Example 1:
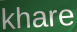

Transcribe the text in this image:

khare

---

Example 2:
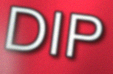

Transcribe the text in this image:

DIP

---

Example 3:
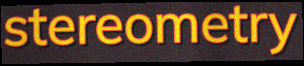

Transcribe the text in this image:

stereometry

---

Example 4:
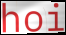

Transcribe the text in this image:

hoi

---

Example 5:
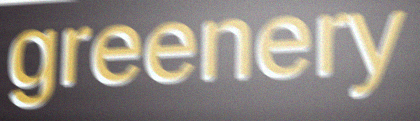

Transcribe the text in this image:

greenery